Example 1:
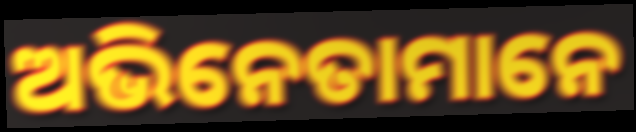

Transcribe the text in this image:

ଅଭିନେତାମାନେ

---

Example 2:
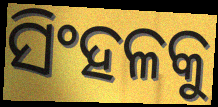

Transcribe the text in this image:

ସିଂହଳକୁ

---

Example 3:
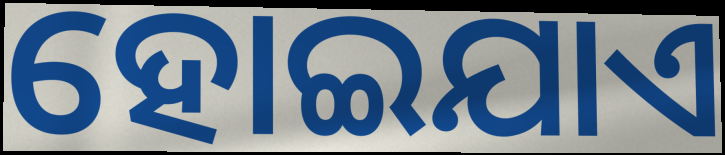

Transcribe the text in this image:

ହୋଇଯାଏ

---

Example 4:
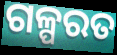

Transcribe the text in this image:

ଗଳ୍ପରତ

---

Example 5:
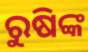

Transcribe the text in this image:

ରୁଷିଙ୍କ